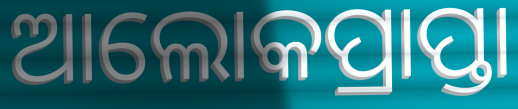
ଆଲୋକପ୍ରାପ୍ତା